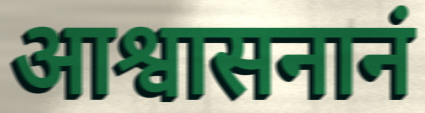
आश्वासनानं